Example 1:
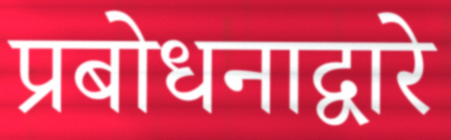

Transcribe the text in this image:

प्रबोधनाद्वारे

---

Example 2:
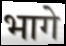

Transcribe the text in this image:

भागे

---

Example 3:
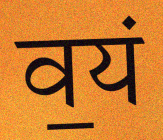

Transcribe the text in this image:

व॒यं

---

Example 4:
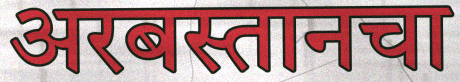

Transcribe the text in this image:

अरबस्तानचा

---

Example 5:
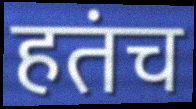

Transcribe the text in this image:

हतंच